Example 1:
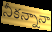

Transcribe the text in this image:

నీకన్నానా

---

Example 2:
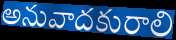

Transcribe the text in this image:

అనువాదకురాలి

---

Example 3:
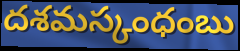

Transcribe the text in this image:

దశమస్కంధంబు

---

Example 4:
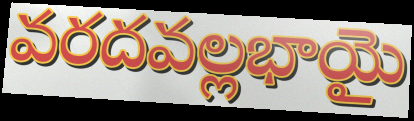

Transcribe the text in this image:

వరదవల్లభాయై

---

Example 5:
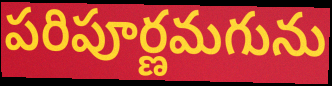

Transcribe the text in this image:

పరిపూర్ణమగును